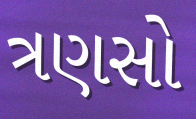
ત્રણસો